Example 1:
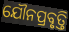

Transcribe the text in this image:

ଯୌନପ୍ରବୃତ୍ତି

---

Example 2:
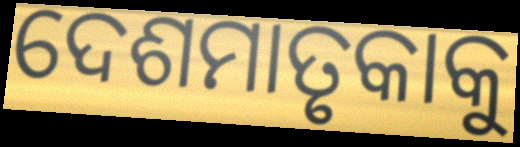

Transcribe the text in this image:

ଦେଶମାତୃକାକୁ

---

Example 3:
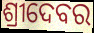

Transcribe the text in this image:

ଶ୍ରୀଦେବର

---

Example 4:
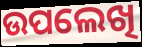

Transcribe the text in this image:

ଉପଲେଖି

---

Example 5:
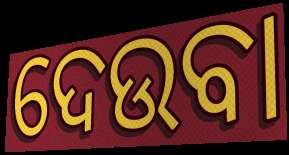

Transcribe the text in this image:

ଦେଉବା